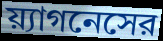
য়্যাগনেসের